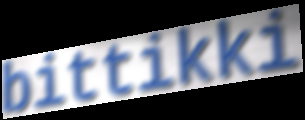
bittikki